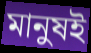
মানুষই